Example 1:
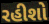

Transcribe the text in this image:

રહીશો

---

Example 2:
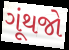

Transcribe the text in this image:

ગૂંથજો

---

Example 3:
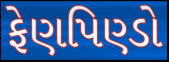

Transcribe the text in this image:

ફેણપિણ્ડો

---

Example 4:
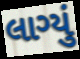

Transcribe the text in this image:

લાગ્યું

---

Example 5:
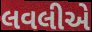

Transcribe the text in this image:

લવલીએ